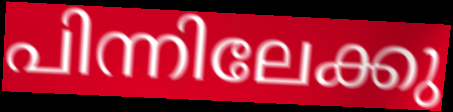
പിന്നിലേക്കു